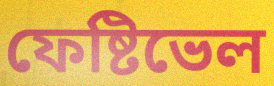
ফেষ্টিভেল